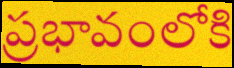
ప్రభావంలోకి